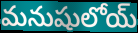
మనుషులోయ్